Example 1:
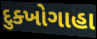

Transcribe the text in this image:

દુક્ખોગાહા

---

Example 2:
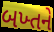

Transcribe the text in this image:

બખ્તને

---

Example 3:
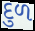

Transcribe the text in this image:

દુળ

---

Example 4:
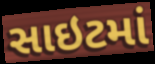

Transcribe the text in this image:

સાઇટમાં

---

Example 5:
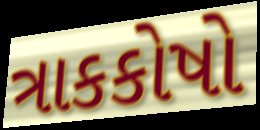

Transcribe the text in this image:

ત્રાકકોષો